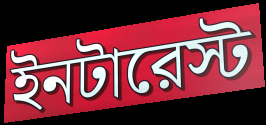
ইনটারেস্ট